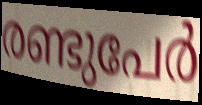
രണ്ടുപേർ